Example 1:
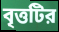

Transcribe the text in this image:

বৃত্তটির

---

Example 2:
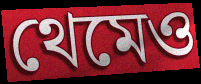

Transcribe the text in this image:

থেমেও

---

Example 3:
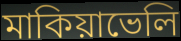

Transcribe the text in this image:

মাকিয়াভেলি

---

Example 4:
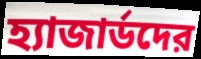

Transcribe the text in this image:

হ্যাজার্ডদের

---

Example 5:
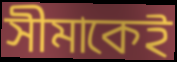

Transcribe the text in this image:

সীমাকেই